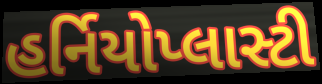
હર્નિયોપ્લાસ્ટી